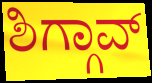
ಶಿಗ್ಗಾವ್